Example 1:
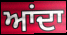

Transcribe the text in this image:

ਆਂਦਾ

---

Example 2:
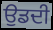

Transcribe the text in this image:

ਉਡਦੀ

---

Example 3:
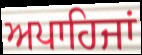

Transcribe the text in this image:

ਅਪਾਹਿਜਾਂ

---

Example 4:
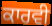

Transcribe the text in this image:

ਕਾਰਵੀ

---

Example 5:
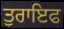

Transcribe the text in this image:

ਤੁਰਾਇਫ